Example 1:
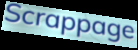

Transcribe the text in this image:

Scrappage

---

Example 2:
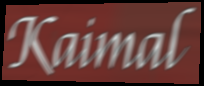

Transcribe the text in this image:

Kaimal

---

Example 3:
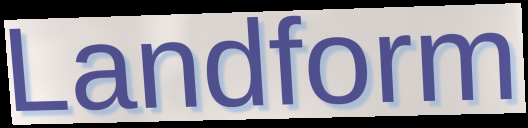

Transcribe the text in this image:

Landform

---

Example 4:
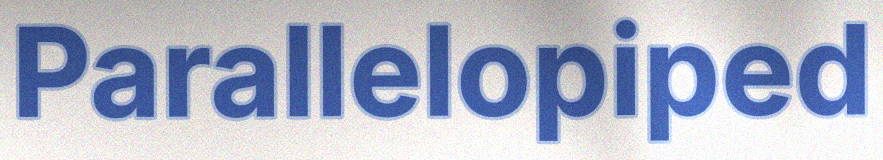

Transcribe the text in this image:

Parallelopiped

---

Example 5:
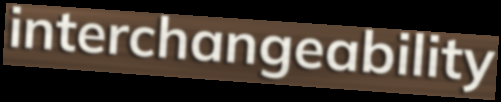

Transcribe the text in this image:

interchangeability